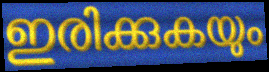
ഇരിക്കുകയും